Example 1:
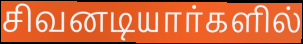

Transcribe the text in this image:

சிவனடியார்களில்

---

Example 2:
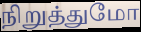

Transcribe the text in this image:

நிறுத்துமோ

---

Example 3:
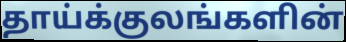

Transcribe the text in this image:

தாய்க்குலங்களின்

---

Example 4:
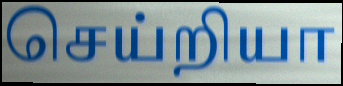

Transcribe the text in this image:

செய்றியா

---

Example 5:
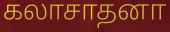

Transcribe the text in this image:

கலாசாதனா